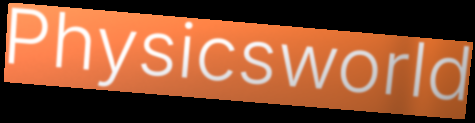
Physicsworld